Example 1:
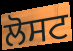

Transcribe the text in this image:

ਲੋਸਟ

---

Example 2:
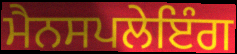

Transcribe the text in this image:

ਮੈਨਸਪਲੇਇੰਗ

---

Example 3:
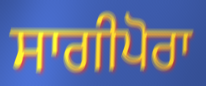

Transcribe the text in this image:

ਸਾਗੀਪੋਰਾ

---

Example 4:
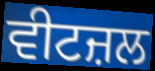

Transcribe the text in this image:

ਵੀਟਜ਼ਲ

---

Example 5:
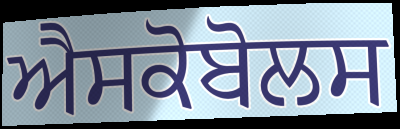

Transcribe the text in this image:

ਐਸਕੋਬੋਲਸ